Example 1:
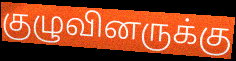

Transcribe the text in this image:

குழுவினருக்கு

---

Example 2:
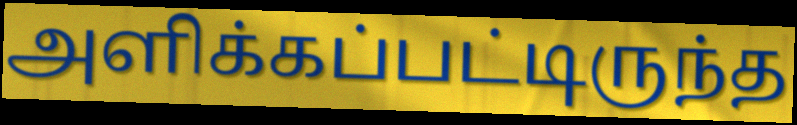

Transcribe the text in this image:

அளிக்கப்பட்டிருந்த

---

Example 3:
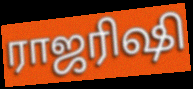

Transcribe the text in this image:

ராஜரிஷி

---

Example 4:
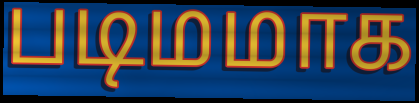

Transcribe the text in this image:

படிமமாக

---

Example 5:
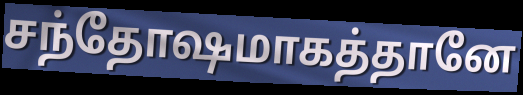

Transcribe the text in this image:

சந்தோஷமாகத்தானே